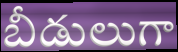
బీడులుగా